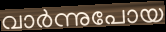
വാർന്നുപോയ